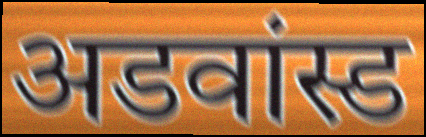
अडवांस्ड